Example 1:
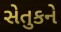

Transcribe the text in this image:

સેતુકને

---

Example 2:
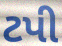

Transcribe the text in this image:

ટપી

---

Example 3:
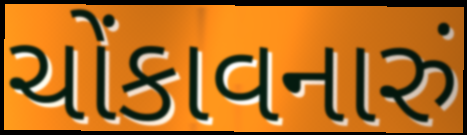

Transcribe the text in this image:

ચોંકાવનારું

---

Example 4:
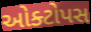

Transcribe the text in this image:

ઓક્ટોપસ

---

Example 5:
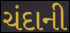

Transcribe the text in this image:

ચંદાની